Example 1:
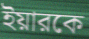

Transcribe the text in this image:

ইয়ারকে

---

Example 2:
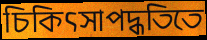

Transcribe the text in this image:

চিকিৎসাপদ্ধতিতে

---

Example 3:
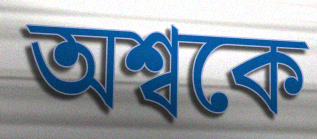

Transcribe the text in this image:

অশ্বকে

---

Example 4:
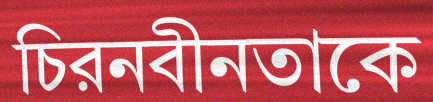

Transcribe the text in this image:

চিরনবীনতাকে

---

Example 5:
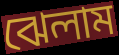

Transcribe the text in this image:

ঝেলাম